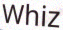
Whiz